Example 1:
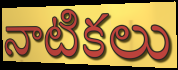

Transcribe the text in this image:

నాటికలు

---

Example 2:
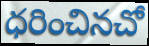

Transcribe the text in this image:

ధరించినచో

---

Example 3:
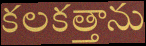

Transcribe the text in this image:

కలకత్తాను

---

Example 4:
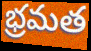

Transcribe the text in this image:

భ్రమత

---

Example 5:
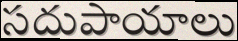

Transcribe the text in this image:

సదుపాయాలు